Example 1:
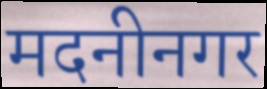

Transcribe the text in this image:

मदनीनगर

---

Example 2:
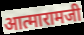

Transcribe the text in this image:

आत्मारामजी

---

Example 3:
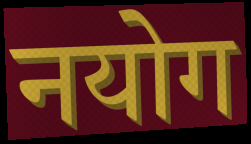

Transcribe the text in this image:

नयोग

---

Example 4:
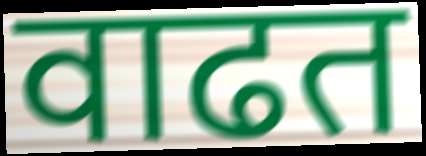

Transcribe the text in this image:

वाढत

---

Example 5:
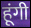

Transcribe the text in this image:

हूंगी